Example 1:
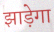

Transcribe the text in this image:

झाड़ेगा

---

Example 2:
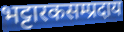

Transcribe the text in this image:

भट्टारकसम्प्रदाय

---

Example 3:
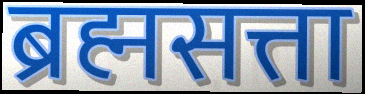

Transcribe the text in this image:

ब्रह्मसत्ता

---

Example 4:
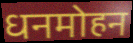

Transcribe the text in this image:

धनमोहन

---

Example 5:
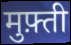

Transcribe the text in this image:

मुफ़्ती